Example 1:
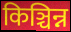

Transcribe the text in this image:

किञ्चिन्न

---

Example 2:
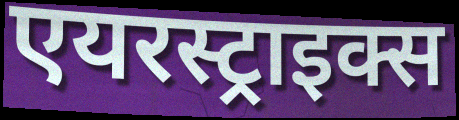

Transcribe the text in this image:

एयरस्ट्राइक्स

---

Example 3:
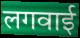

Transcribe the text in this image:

लगवाई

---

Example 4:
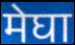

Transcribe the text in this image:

मेघा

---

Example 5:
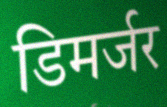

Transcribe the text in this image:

डिमर्जर